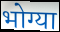
भोग्या